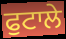
ਫੁਟਾਲੇ